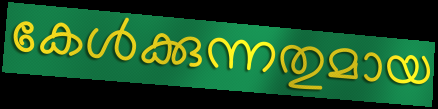
കേൾക്കുന്നതുമായ